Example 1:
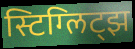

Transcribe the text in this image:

स्टिग्लिट्झ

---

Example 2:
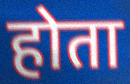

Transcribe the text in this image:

होता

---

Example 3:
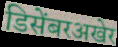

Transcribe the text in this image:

डिसेंबरअखेर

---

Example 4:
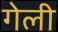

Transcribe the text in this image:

गेली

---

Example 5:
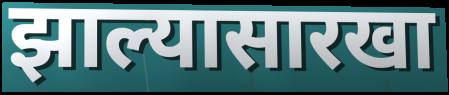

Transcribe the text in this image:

झाल्यासारखा